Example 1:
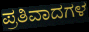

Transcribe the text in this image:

ಪ್ರತಿವಾದಗಳ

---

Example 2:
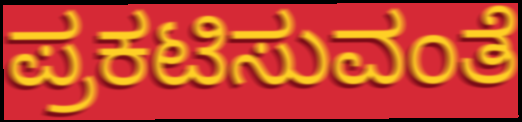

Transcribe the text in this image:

ಪ್ರಕಟಿಸುವಂತೆ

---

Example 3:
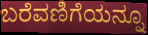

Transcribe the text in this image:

ಬರೆವಣಿಗೆಯನ್ನೂ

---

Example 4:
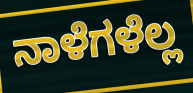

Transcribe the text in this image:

ನಾಳೆಗಳೆಲ್ಲ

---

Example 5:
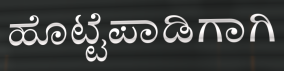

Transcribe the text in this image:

ಹೊಟ್ಟೆಪಾಡಿಗಾಗಿ